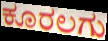
ಕೂರಲಗು